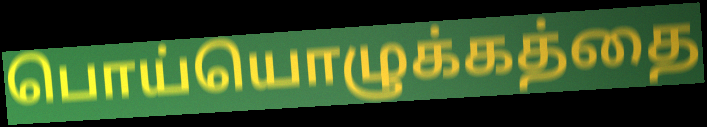
பொய்யொழுக்கத்தை